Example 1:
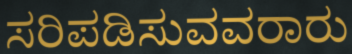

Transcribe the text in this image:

ಸರಿಪಡಿಸುವವರಾರು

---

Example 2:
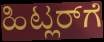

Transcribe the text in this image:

ಹಿಟ್ಲರ್‌ಗೆ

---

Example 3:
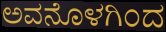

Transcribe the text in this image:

ಅವನೊಳಗಿಂದ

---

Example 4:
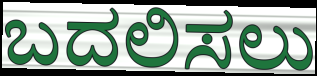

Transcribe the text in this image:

ಬದಲಿಸಲು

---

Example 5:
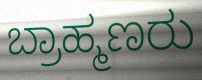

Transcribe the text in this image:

ಬ್ರಾಹ್ಮಣರು